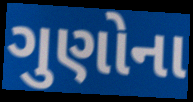
ગુણોના